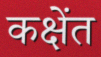
कक्षेंत